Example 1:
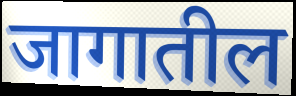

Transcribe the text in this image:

जागातील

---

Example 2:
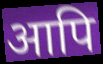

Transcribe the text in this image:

आपि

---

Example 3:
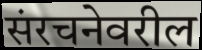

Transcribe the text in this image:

संरचनेवरील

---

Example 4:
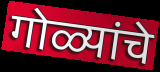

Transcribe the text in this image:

गोळ्यांचे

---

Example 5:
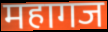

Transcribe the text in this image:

महागज